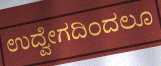
ಉದ್ವೇಗದಿಂದಲೂ